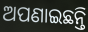
ଅପଣାଇଛନ୍ତି